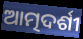
ଆତ୍ମଦର୍ଶୀ